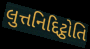
લુત્તનિદ્દિટ્ઠોતિ